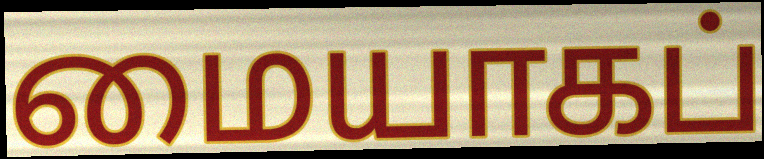
மையாகப்